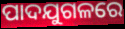
ପାଦଯୁଗଳରେ